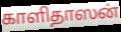
காளிதாஸன்